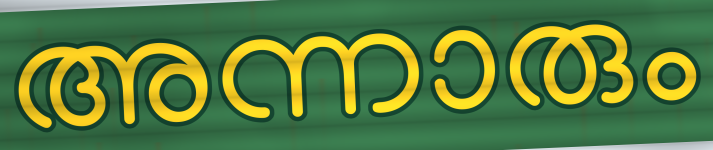
അന്നാരും